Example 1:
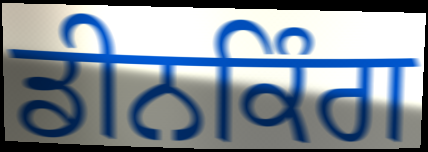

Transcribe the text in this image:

ਡੀਨਕਿੰਗ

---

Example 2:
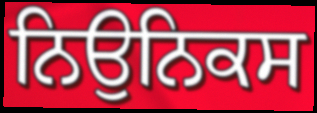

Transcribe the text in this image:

ਨਿਉਨਿਕਸ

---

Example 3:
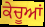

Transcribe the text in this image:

ਕੇਚੂਆਂ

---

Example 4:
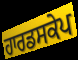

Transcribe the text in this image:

ਹਾਰਡਸਕੇਪ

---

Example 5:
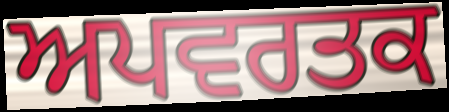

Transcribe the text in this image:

ਅਪਵਰਤਕ